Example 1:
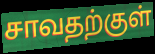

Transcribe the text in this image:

சாவதற்குள்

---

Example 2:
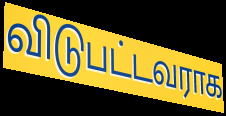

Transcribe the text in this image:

விடுபட்டவராக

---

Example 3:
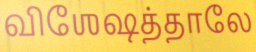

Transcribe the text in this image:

விஶேஷத்தாலே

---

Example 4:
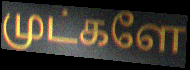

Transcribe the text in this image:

முட்களே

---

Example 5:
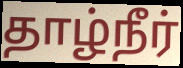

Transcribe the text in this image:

தாழ்நீர்